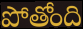
పోతోంది